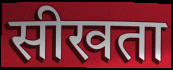
सीखता